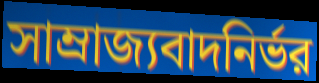
সাম্রাজ্যবাদনির্ভর